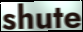
shute